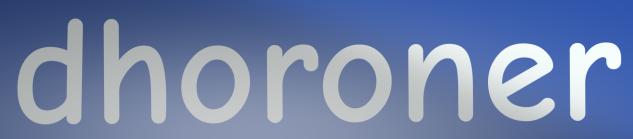
dhoroner